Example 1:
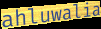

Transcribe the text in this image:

ahluwalia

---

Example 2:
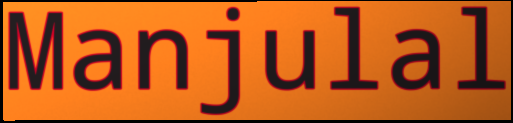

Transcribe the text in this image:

Manjulal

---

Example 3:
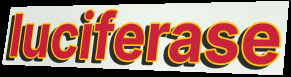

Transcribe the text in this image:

luciferase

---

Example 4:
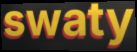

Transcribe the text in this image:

swaty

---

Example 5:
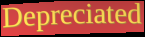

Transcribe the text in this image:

Depreciated